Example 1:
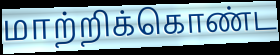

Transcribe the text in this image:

மாற்றிக்கொண்ட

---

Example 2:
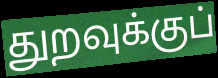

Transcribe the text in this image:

துறவுக்குப்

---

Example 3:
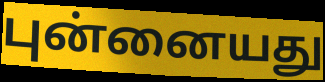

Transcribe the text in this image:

புன்னையது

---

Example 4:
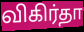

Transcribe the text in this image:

விகிர்தா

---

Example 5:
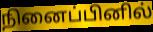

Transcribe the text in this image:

நினைப்பினில்